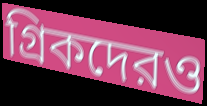
গ্রিকদেরও